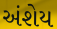
અંશેય